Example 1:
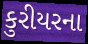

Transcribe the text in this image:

કુરીયરના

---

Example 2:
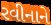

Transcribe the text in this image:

રવીનાને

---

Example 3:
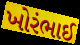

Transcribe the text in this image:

ખોરંભાઈ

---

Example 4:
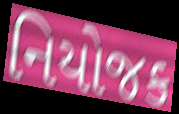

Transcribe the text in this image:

નિયોજક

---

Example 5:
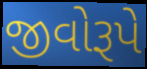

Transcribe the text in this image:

જીવોરૂપે